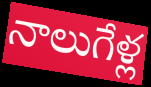
నాలుగేళ్ల